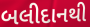
બલીદાનથી